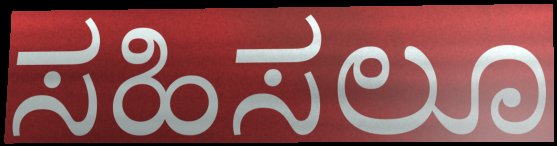
ಸಹಿಸಲೂ